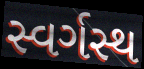
સ્વર્ગસ્થ